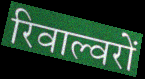
रिवाल्वरों